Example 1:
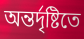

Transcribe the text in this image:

অন্তর্দৃষ্টিতে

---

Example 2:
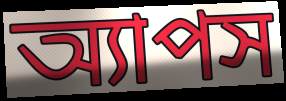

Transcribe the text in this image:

অ্যাপস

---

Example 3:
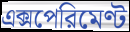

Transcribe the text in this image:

এক্সপেরিমেণ্ট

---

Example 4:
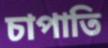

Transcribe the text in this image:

চাপাতি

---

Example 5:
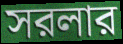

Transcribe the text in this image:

সরলার